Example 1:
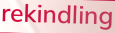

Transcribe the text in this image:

rekindling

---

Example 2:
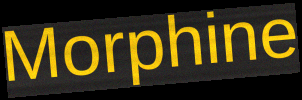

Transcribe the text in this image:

Morphine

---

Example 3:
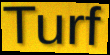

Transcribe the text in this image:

Turf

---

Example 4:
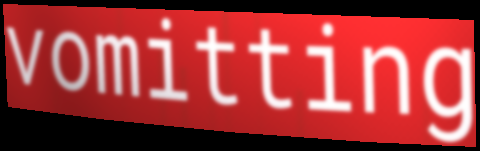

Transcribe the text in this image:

vomitting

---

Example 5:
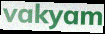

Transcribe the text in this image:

vakyam